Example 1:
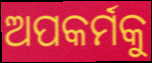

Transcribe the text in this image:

ଅପକର୍ମକୁ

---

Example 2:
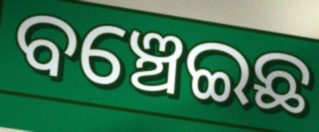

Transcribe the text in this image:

ବଞ୍ଚେଇଛ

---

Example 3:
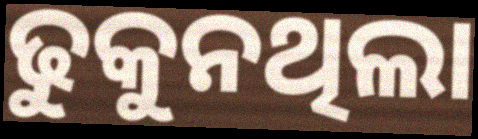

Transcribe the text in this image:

ଢୁକୁନଥିଲା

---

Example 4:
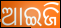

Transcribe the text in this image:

ଆଇଜି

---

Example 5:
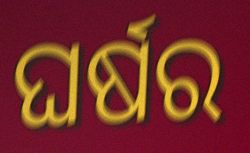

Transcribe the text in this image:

ଘର୍ଷର